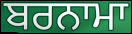
ਬਰਨਾਮਾ